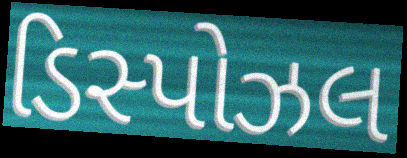
ડિસ્પોઝલ